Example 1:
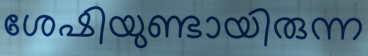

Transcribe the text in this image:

ശേഷിയുണ്ടായിരുന്ന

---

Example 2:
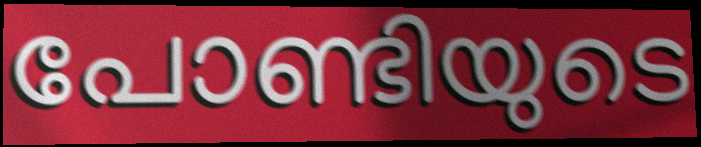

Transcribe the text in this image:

പോണ്ടിയുടെ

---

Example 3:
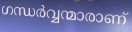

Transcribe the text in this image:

ഗന്ധർവ്വന്മാരാണ്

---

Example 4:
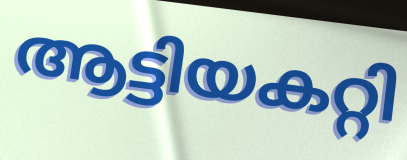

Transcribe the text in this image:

ആട്ടിയകറ്റി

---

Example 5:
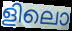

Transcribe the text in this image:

ളിലൊ